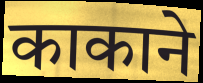
काकाने